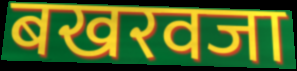
बखरवजा